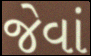
જેવાં